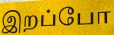
இறப்போ